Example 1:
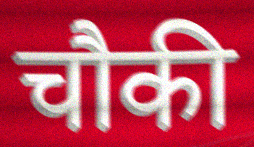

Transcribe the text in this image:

चौकी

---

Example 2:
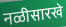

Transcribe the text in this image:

नळीसारखे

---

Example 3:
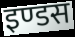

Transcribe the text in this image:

इण्डस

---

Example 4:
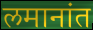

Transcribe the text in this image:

लमानांत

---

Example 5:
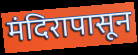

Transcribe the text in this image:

मंदिरापासून